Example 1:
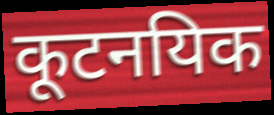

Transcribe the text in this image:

कूटनयिक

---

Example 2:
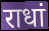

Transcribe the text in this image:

राधां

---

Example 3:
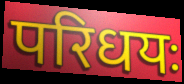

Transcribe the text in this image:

परिधयः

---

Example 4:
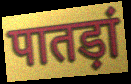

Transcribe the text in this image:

पातड़ां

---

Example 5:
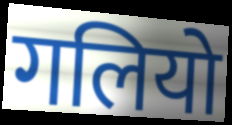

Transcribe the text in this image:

गलियो